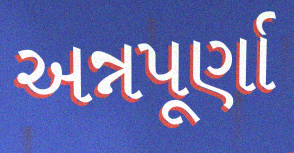
અન્નપૂર્ણા